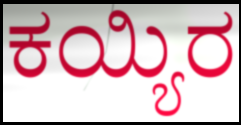
ಕಯ್ಯಿರ